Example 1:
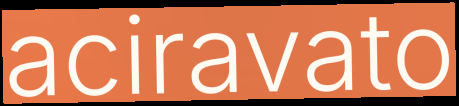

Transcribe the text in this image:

aciravato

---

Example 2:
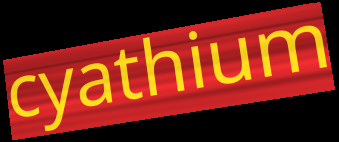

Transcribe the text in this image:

cyathium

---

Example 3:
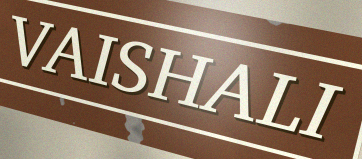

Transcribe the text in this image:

VAISHALI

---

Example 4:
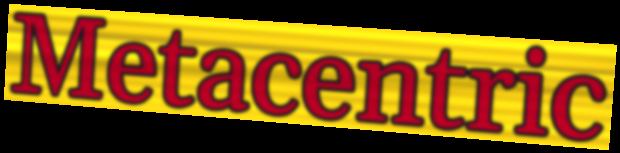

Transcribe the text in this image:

Metacentric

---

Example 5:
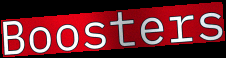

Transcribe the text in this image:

Boosters